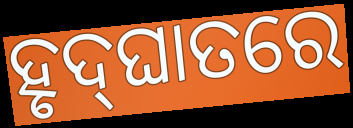
ହୃଦ୍‌ଘାତରେ